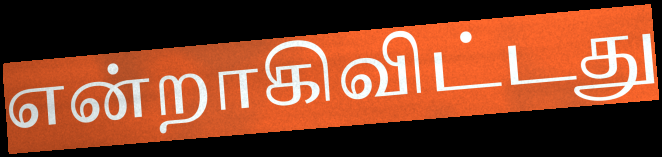
என்றாகிவிட்டது